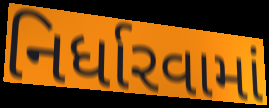
નિર્ધારવામાં